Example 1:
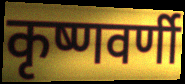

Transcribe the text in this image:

कृष्णवर्णी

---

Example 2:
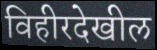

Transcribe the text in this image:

विहीरदेखील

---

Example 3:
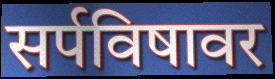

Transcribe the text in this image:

सर्पविषावर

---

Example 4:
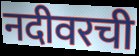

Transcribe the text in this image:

नदीवरची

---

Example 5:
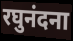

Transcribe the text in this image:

रघुनंदना